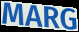
MARG